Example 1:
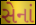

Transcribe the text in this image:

સેનાં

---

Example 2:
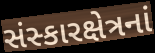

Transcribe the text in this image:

સંસ્કારક્ષેત્રનાં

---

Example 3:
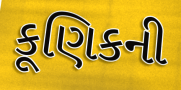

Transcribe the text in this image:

કૂણિકની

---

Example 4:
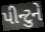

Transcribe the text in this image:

પીન્ટુને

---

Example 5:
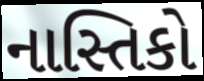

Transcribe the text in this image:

નાસ્તિકો